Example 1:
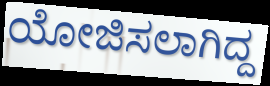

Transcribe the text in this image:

ಯೋಜಿಸಲಾಗಿದ್ದ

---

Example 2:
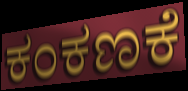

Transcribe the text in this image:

ಕಂಕಣಕೆ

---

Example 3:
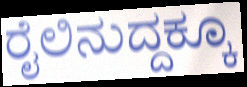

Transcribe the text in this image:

ರೈಲಿನುದ್ದಕ್ಕೂ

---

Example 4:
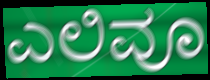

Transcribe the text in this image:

ಎಲಿವೂ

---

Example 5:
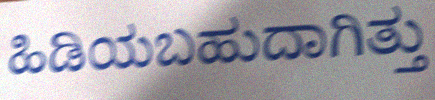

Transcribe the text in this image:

ಹಿಡಿಯಬಹುದಾಗಿತ್ತು